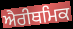
ਐਰੀਥਮਿਕ